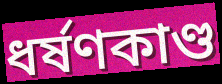
ধর্ষণকাণ্ড